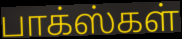
பாக்ஸ்கள்